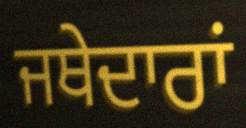
ਜਥੇਦਾਰਾਂ